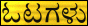
ಓಟಗಳು